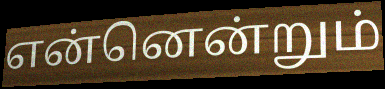
என்னென்றும்